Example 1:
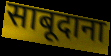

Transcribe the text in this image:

साबूदाना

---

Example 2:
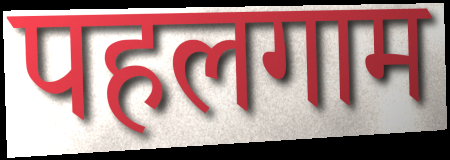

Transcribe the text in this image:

पहलगाम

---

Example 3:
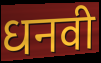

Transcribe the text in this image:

धनवी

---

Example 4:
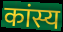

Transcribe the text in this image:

कांस्य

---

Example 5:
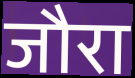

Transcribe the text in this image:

जौरा